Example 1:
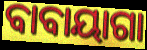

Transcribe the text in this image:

ବାବାୟାଗା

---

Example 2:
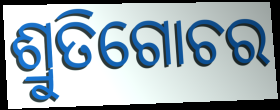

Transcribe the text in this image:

ଶ୍ରୁତିଗୋଚର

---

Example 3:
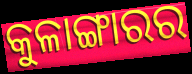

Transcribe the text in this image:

କୁଳାଙ୍ଗାରର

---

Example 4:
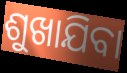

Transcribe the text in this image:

ଶୁଖାଯିବା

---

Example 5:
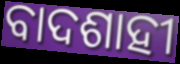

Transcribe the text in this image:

ବାଦଶାହୀ